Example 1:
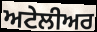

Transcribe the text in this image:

ਅਟੇਲੀਅਰ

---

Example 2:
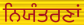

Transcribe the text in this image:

ਨਿਯੰਤਰਣਾਂ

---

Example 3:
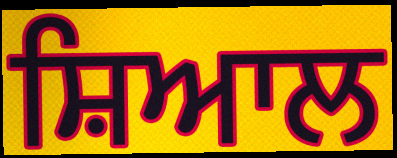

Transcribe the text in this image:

ਸ਼ਿਆਲ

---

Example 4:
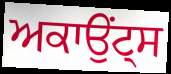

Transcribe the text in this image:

ਅਕਾਉਂਟ੍ਸ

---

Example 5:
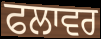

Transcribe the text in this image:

ਫਲਾਵਰ